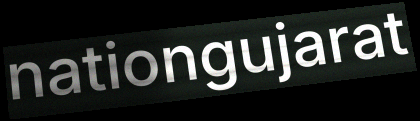
nationgujarat